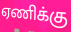
ஏணிக்கு